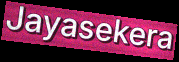
Jayasekera